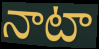
నాటా